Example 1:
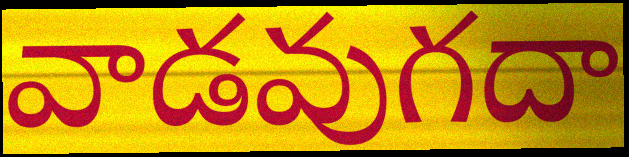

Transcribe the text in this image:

వాడవుగదా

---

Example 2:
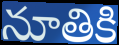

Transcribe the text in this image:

నూతికి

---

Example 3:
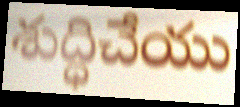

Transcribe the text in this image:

శుద్ధిచేయు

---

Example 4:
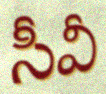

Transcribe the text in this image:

సీవీ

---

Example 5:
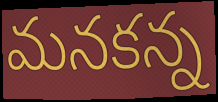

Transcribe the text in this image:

మనకన్న